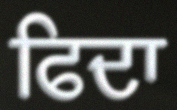
ਫਿਦਾ